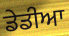
ਡੇਡੀਆ